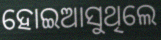
ହୋଇଆସୁଥିଲେ